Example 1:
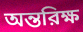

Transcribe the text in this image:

অন্তরিক্ষ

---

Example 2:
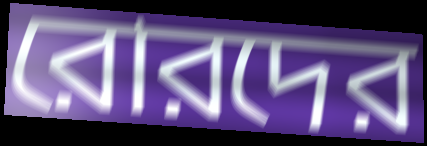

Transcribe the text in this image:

রোরদের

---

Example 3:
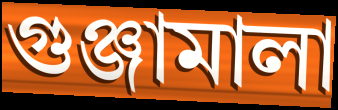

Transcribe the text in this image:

গুঞ্জামালা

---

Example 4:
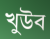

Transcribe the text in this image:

খুউব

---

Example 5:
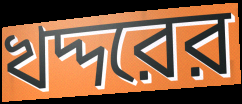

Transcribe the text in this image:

খদ্দরের